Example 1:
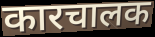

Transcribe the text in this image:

कारचालक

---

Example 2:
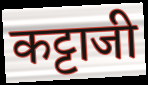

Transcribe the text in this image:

कट्टाजी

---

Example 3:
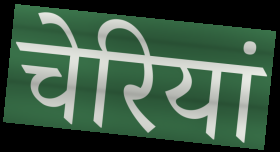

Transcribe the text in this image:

चेरियां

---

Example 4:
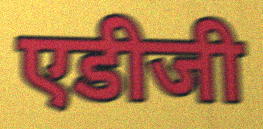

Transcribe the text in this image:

एडीजी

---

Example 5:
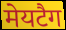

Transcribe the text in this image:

मेयटैग